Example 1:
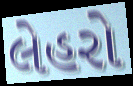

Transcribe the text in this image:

લેહરો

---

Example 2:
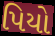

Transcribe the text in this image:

પિયો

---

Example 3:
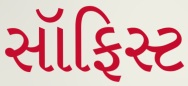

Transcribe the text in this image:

સૉફિસ્ટ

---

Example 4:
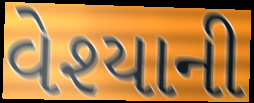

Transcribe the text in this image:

વેશ્યાની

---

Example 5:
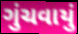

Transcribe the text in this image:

ગુંચવાયું